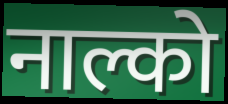
नाल्को